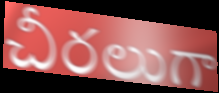
చీరలుగా